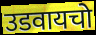
उडवायचो